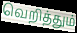
வெறித்தும்